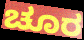
ಚೂರ